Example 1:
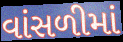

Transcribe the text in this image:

વાંસળીમાં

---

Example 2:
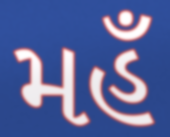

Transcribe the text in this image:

મહઁ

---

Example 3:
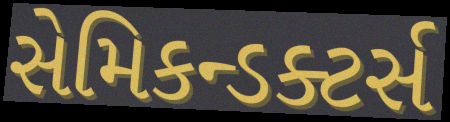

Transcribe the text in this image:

સેમિકન્ડક્ટર્સ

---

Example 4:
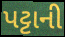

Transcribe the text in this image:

પટ્ટાની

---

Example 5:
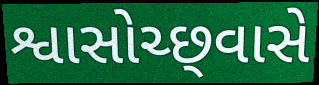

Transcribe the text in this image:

શ્વાસોચ્છ્‍વાસે